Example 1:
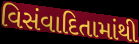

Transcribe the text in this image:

વિસંવાદિતામાંથી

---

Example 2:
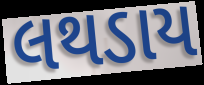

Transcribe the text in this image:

લથડાય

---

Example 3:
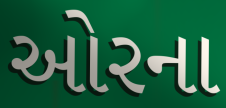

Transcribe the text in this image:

ઓરના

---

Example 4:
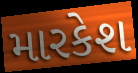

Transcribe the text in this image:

મારકેશ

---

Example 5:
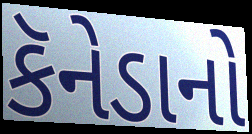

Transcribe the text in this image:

કૅનેડાનો